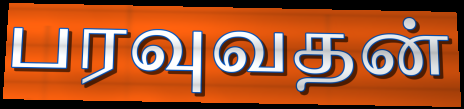
பரவுவதன்